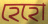
হেহো